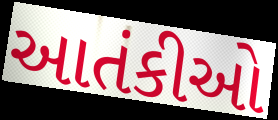
આતંકીઓ